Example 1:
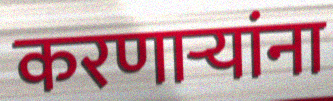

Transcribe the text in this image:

करणाऱ्यांना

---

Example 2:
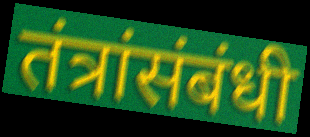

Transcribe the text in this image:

तंत्रांसंबंधी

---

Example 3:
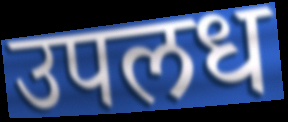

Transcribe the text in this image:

उपलध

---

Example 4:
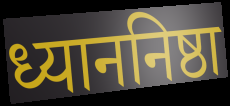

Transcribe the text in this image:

ध्याननिष्ठा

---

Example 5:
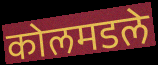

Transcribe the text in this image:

कोलमडले